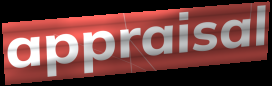
appraisal